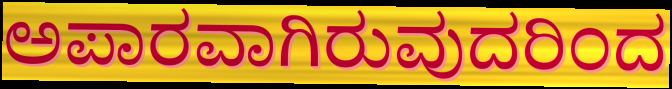
ಅಪಾರವಾಗಿರುವುದರಿಂದ